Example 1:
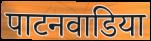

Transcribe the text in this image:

पाटनवाडिया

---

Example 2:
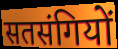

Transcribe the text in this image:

सतसंगियों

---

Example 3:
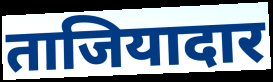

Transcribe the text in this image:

ताजियादार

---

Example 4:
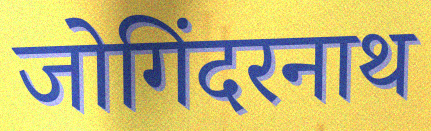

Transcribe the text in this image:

जोगिंदरनाथ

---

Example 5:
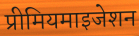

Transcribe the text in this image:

प्रीमियमाइजेशन